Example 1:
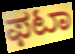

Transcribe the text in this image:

ಫಟಾ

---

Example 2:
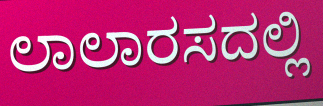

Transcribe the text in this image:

ಲಾಲಾರಸದಲ್ಲಿ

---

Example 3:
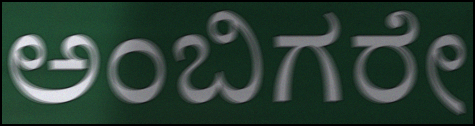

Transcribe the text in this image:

ಅಂಬಿಗರೇ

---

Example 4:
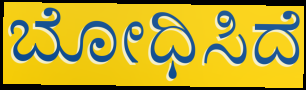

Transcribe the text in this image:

ಬೋಧಿಸಿದೆ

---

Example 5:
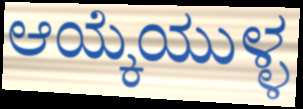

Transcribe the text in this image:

ಆಯ್ಕೆಯುಳ್ಳ